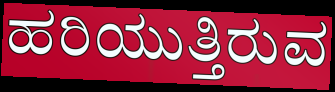
ಹರಿಯುತ್ತಿರುವ